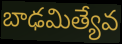
బాఢమిత్యేవ